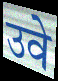
उवे